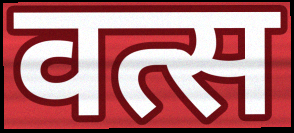
वत्स